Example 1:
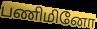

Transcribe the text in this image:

பணிமினோ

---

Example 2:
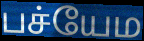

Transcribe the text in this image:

பச்யேம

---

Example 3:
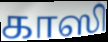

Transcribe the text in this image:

காஸி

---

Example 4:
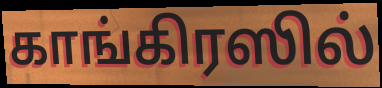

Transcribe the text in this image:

காங்கிரஸில்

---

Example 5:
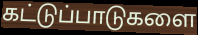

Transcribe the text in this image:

கட்டுப்பாடுகளை